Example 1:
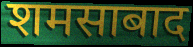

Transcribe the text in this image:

शमसाबाद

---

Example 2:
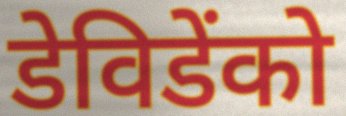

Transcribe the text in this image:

डेविडेंको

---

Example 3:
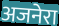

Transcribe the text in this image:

अजनेरा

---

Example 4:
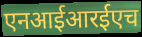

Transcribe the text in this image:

एनआईआरईएच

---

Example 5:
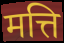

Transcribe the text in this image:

मत्ति